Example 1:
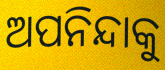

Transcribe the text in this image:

ଅପନିନ୍ଦାକୁ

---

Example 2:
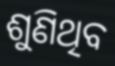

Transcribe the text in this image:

ଶୁଣିଥିବ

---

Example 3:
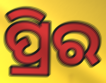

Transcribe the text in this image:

ପ୍ରିର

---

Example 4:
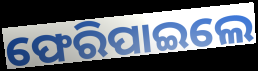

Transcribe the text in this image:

ଫେରିପାଇଲେ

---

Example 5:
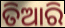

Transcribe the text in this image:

ତିଆରି